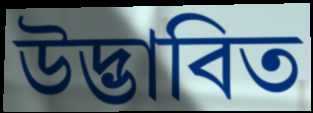
উদ্ভাবিত